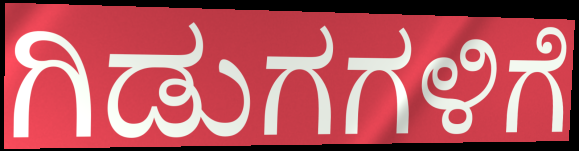
ಗಿಡುಗಗಳಿಗೆ